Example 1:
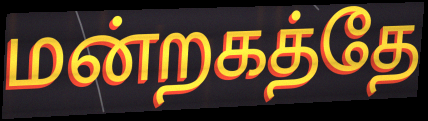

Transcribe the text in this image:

மன்றகத்தே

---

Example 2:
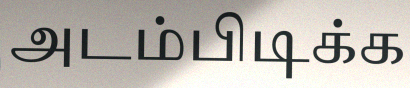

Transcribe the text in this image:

அடம்பிடிக்க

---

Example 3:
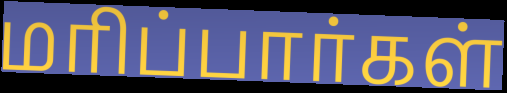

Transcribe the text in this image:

மரிப்பார்கள்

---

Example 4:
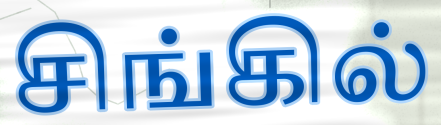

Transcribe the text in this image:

சிங்கில்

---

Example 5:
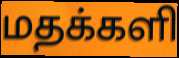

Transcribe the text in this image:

மதக்களி